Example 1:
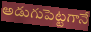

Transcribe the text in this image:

అడుగుపెట్టగానే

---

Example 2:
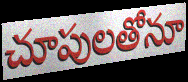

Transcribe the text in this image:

చూపులతోనూ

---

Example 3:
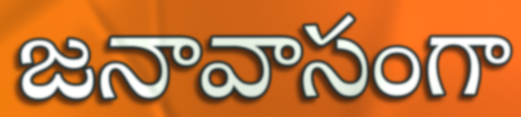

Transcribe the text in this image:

జనావాసంగా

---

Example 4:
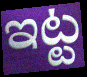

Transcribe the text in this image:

ఇట్ట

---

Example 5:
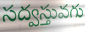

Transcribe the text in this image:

సద్వస్తువగు